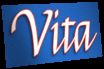
Vita